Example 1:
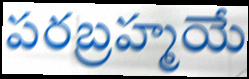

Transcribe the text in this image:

పరబ్రహ్మయే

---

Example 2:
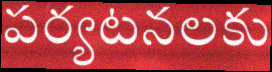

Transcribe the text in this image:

పర్యటనలకు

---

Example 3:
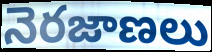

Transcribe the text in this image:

నెరజాణలు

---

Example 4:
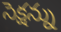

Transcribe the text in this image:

సెక్షన్ను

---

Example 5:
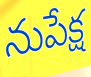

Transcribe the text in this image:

నుపేక్ష